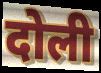
दोली